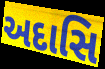
અદાસિ